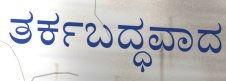
ತರ್ಕಬದ್ಧವಾದ